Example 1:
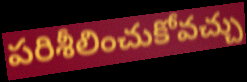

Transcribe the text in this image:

పరిశీలించుకోవచ్చు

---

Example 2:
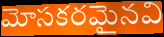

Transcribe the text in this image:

మోసకరమైనవి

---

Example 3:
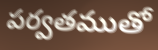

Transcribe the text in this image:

పర్వతముతో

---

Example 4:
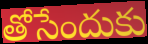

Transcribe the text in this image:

తోసేందుకు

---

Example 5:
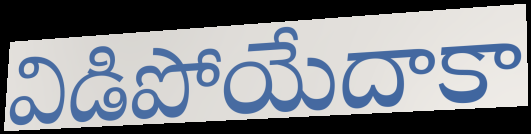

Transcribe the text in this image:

విడిపోయేదాకా